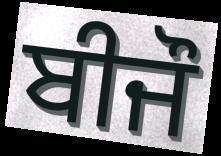
ਬੀਜੌ